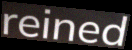
reined